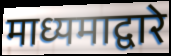
माध्यमाद्वारे